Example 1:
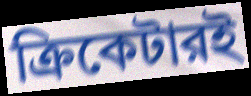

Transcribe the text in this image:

ক্রিকেটারই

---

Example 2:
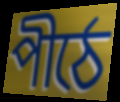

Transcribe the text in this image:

পীঠে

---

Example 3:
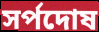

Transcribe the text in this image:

সর্পদোষ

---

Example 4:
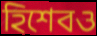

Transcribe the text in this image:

হিশেবও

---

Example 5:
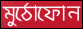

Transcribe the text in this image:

মুঠোফোন